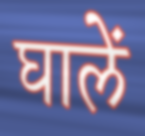
घालें